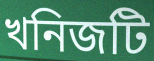
খনিজটি